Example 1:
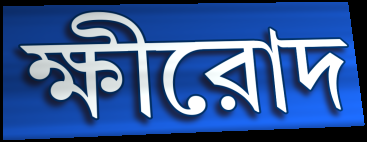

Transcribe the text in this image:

ক্ষীরোদ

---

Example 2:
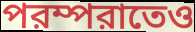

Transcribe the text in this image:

পরম্পরাতেও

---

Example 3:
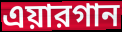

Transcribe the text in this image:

এয়ারগান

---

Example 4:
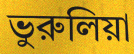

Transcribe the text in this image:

ভুরুলিয়া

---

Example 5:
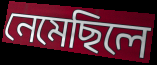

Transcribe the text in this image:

নেমেছিলে